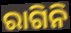
ରାଗିନି